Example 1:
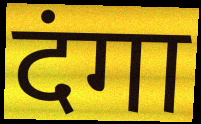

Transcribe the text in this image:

दंगा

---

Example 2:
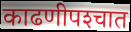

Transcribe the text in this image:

काढणीपश्‍चात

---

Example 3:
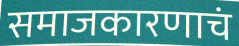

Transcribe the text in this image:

समाजकारणाचं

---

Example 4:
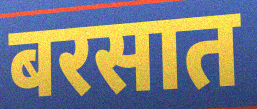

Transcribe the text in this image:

बरसात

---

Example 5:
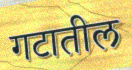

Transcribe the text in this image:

गटातील